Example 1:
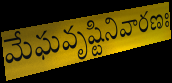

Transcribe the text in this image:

మేఘవృష్టినివారణః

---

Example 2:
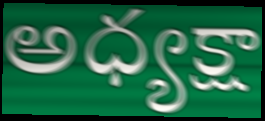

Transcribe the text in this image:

అధ్యక్షా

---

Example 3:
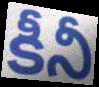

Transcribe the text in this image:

కీనీ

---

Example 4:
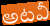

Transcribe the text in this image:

అటవీ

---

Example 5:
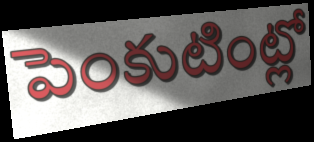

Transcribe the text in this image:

పెంకుటింట్లో